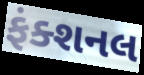
ફંક્શનલ